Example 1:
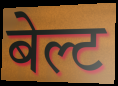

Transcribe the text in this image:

बेल्ट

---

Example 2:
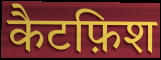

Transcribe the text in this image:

कैटफ़िश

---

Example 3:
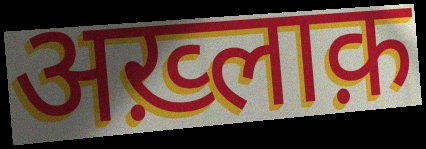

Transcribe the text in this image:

अख़्लाक़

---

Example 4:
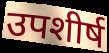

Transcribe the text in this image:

उपशीर्ष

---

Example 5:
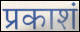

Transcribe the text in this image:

प्रकाशं